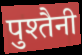
पुश्‍तैनी